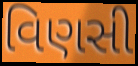
વિણસી